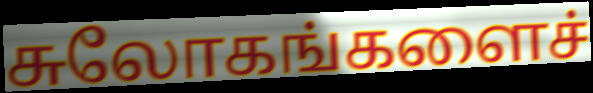
சுலோகங்களைச்